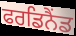
ਫਰਡਿਨੈਂਡ